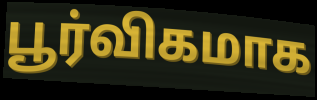
பூர்விகமாக